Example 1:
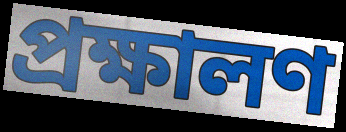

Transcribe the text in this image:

প্রক্ষালণ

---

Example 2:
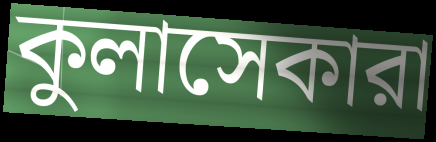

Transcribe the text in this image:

কুলাসেকারা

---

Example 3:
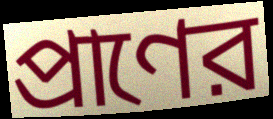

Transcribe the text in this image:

প্রাণের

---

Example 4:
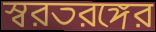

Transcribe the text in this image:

স্বরতরঙ্গের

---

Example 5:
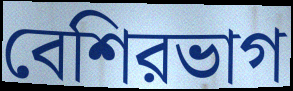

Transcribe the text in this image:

বেশিরভাগ